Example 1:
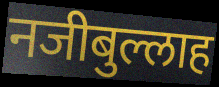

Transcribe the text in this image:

नजीबुल्लाह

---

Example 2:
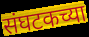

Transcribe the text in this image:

संघटकच्या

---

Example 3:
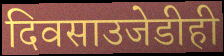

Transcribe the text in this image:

दिवसाउजेडीही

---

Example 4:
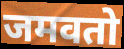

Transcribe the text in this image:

जमवतो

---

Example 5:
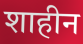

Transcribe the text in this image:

शाहीन